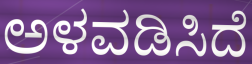
ಅಳವಡಿಸಿದೆ